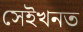
সেইখনত